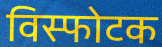
विस्फोटक